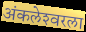
अंकलेश्वरला